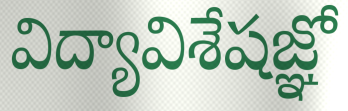
విద్యావిశేషజ్ఞో